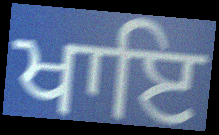
ਖਾਇ